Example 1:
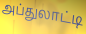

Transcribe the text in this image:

அப்துலாட்டி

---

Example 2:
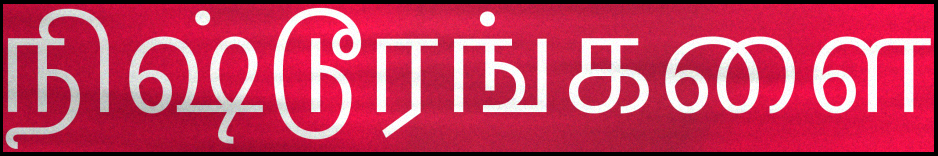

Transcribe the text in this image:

நிஷ்டூரங்களை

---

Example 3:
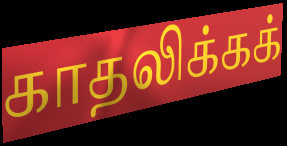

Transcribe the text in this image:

காதலிக்கக்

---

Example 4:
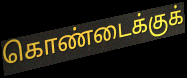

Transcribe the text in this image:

கொண்டைக்குக்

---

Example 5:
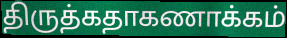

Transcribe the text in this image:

திருத்கதாகணாக்கம்